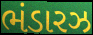
ભંડારઝ